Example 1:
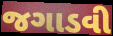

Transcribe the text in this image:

જગાડવી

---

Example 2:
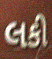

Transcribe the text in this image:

લકી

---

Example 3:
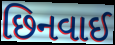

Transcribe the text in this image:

છિનવાઈ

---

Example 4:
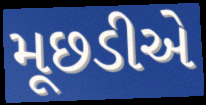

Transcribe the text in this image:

મૂછડીએ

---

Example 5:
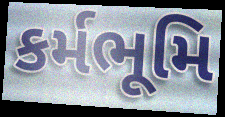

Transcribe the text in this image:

કર્મભૂમિ